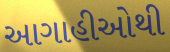
આગાહીઓથી